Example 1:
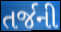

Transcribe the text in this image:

તર્જની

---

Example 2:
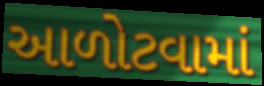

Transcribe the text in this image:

આળોટવામાં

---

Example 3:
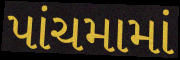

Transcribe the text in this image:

પાંચમામાં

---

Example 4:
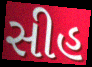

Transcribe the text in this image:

સીહ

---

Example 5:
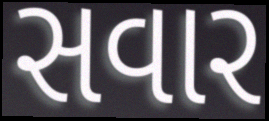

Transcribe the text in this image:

સવાર